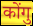
कोंगु